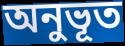
অনুভূত